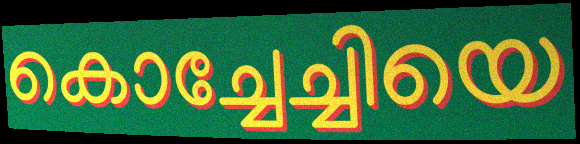
കൊച്ചേച്ചിയെ